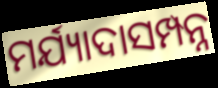
ମର୍ଯ୍ୟାଦାସମ୍ପନ୍ନ